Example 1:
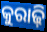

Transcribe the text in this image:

କୁରାଢ଼ି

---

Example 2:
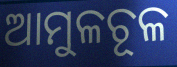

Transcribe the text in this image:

ଆମୁଳଚୂଳ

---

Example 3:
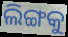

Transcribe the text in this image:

ଲିଙ୍ଗକୁ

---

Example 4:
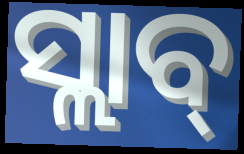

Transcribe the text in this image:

ସ୍ଲାବ୍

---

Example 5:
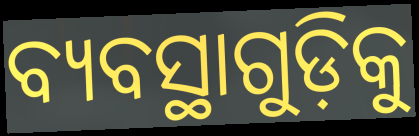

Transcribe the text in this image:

ବ୍ୟବସ୍ଥାଗୁଡ଼ିକୁ